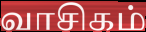
வாசிகம்